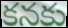
కనకు